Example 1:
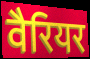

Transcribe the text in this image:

वैरियर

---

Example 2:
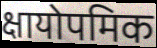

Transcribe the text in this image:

क्षायोपमिक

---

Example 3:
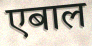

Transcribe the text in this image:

एबाल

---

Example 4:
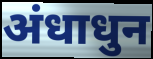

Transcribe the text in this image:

अंधाधुन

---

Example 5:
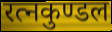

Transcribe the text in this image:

रत्नकुण्डल